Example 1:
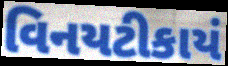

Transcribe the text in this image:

વિનયટીકાયં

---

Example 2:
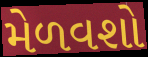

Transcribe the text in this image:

મેળવશો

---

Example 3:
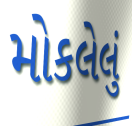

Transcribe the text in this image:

મોકલેલું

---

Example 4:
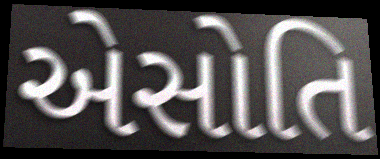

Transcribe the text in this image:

એસોતિ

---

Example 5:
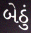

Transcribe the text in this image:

બેઠું